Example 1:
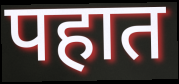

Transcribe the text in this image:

पहात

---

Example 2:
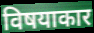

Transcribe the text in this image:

विषयाकार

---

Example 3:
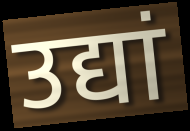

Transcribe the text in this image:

उद्यां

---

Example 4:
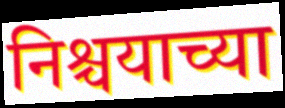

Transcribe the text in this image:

निश्चयाच्या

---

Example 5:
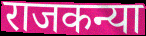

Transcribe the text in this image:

राजकन्या